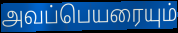
அவப்பெயரையும்